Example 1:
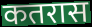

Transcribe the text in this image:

कतरास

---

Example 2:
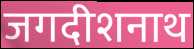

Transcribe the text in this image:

जगदीशनाथ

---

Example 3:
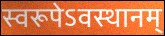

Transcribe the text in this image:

स्वरूपेऽवस्थानम्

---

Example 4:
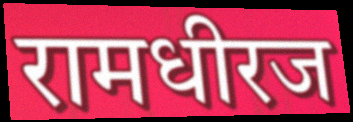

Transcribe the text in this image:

रामधीरज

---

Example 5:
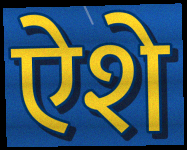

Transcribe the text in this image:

ऐशे